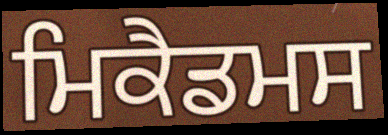
ਮਿਕੈਡਮਸ